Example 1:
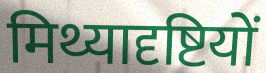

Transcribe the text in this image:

मिथ्यादृष्टियों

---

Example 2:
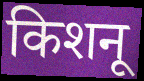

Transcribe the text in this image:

किशनू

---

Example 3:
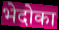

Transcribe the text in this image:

भेदोका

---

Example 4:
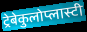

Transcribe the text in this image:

ट्रेबेकुलोप्लास्टी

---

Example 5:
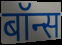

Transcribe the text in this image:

बॉन्स